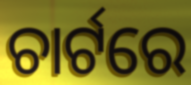
ଚାର୍ଟରେ